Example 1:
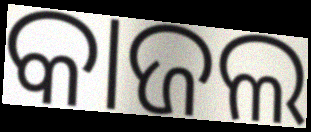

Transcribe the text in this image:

କାଜଲ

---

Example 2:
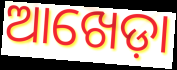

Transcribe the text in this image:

ଆଖେଡ଼ା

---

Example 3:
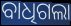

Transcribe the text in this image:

ବାଧିଗଲା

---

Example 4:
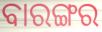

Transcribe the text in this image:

ବାରଙ୍ଗର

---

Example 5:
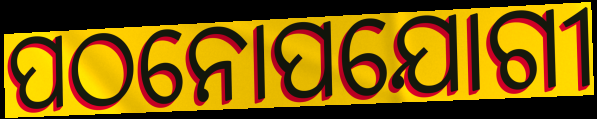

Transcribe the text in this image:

ପଠନୋପଯୋଗୀ